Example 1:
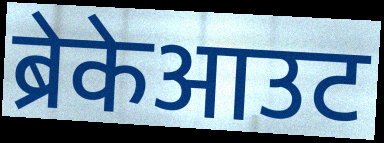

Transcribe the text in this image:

ब्रेकेआउट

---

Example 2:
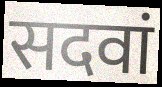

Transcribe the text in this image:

सदवां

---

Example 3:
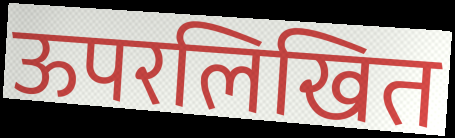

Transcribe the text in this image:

ऊपरलिखित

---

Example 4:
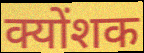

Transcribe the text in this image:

क्योंशक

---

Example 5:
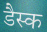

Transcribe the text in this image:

डैस्क